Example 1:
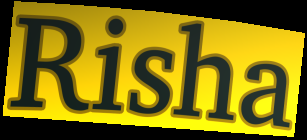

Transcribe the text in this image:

Risha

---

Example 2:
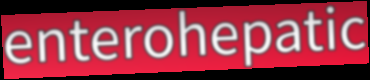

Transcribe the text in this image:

enterohepatic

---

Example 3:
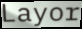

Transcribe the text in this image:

Layor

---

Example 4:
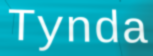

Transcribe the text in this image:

Tynda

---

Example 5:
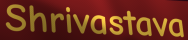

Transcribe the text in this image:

Shrivastava